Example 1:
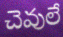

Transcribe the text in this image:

చెవులే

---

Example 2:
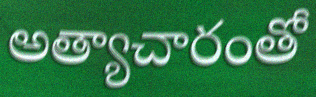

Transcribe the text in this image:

అత్యాచారంతో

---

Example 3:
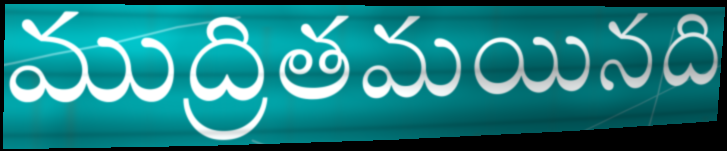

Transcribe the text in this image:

ముద్రితమయినది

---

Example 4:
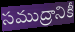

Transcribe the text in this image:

సముద్రానికీ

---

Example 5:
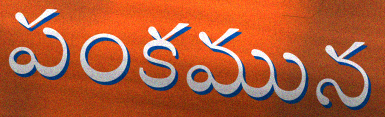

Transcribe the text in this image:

పంకమున